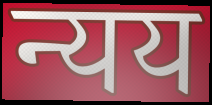
न्यय